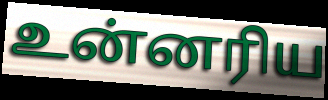
உன்னரிய